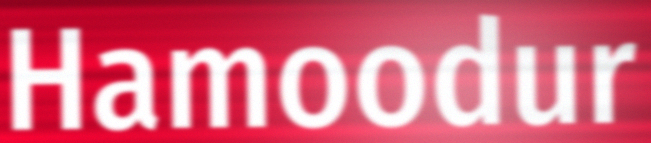
Hamoodur